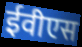
ईवीएस